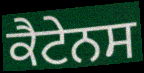
ਕੈਟੇਨਸ